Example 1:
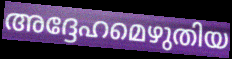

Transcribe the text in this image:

അദ്ദേഹമെഴുതിയ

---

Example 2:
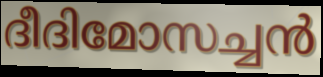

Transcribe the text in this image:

ദീദിമോസച്ചൻ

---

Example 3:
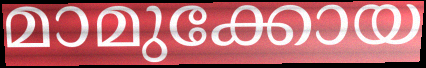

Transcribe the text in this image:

മാമുക്കോയ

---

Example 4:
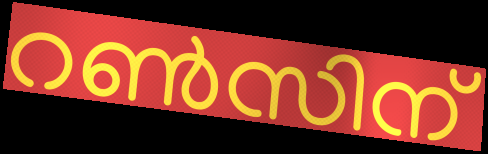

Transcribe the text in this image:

റൺസിന്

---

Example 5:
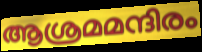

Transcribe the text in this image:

ആശ്രമമന്ദിരം